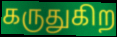
கருதுகிற